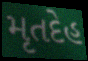
મૃતદેહ